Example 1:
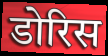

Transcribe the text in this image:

डोरिस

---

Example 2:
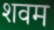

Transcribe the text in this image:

शवम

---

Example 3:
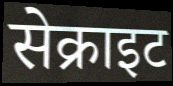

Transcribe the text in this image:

सेक्राइट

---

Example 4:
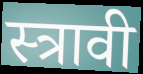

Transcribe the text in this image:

स्त्रावी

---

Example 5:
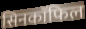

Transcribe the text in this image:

सिनकॉफिल